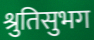
श्रुतिसुभग